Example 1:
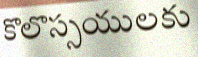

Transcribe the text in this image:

కొలొస్సయులకు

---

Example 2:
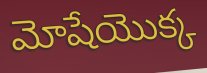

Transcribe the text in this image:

మోషేయొక్క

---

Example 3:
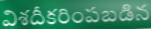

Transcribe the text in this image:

విశదీకరింపబడిన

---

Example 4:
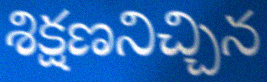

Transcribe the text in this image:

శిక్షణనిచ్చిన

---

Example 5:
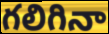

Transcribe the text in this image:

గలిగినా